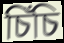
চিঁচি